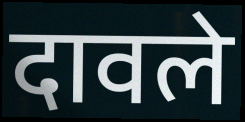
दावले